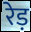
रेड़